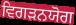
ਵਿਗੜਨਯੋਗ